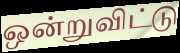
ஒன்றுவிட்டு